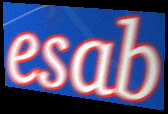
esab